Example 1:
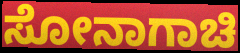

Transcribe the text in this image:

ಸೋನಾಗಾಚಿ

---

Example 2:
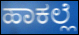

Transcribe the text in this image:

ಹಾಕಲ್ಲೆ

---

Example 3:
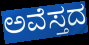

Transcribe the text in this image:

ಅವೆಸ್ತದ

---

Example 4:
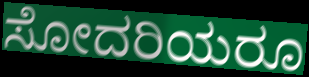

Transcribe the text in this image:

ಸೋದರಿಯರೂ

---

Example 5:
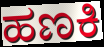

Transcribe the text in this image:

ಹಣಕಿ